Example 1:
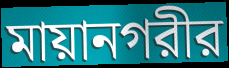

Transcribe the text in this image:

মায়ানগরীর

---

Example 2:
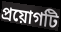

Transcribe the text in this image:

প্রয়োগটি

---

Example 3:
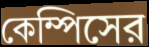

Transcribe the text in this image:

কেম্পিসের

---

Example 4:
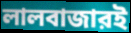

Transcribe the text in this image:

লালবাজারই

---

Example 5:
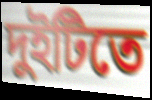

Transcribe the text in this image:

দুইটিতে